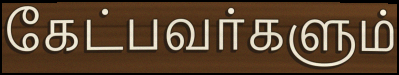
கேட்பவர்களும்